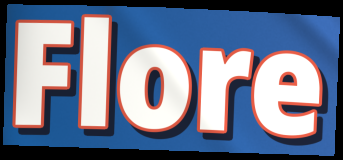
Flore